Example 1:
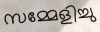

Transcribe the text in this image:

സമ്മേളിച്ചു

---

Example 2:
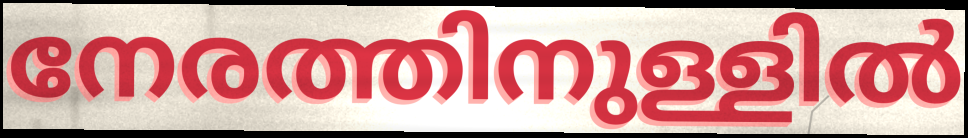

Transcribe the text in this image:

നേരത്തിനുള്ളിൽ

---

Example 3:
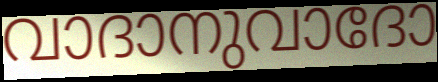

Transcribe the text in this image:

വാദാനുവാദോ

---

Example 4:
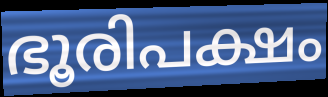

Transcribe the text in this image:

ഭൂരിപക്ഷം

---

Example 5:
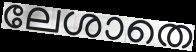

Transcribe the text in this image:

ലേശാതെ